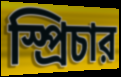
স্প্রিচার